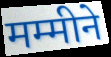
मम्मीने